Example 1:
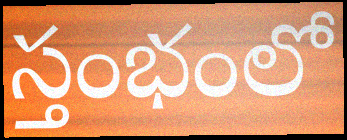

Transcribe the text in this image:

స్తంభంలో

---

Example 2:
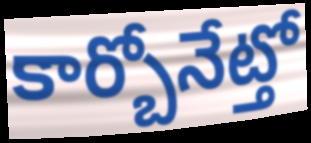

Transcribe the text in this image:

కార్బోనేట్తో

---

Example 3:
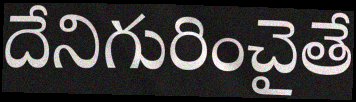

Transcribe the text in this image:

దేనిగురించైతే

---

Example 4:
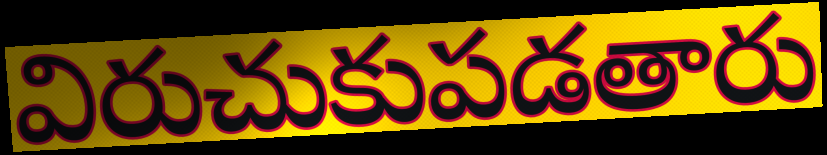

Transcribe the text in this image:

విరుచుకుపడతారు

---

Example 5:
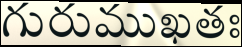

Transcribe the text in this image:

గురుముఖతః